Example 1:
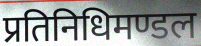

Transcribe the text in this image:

प्रतिनिधिमण्डल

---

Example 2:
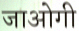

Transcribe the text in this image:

जाओगी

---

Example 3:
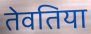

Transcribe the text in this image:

तेवतिया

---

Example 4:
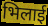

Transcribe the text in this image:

भिलाई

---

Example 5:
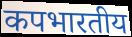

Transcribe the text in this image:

कपभारतीय